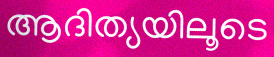
ആദിത്യയിലൂടെ